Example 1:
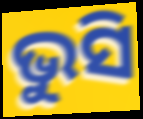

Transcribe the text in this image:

ଭୁସି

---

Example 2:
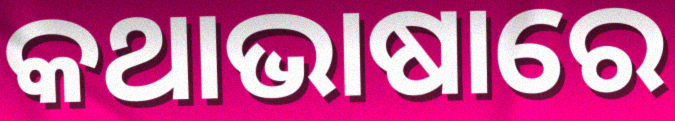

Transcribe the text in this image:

କଥାଭାଷାରେ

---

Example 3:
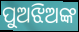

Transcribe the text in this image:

ପୁଅଝିଅଙ୍କ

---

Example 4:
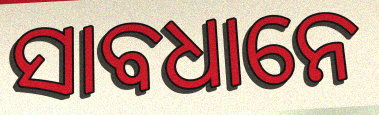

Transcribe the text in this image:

ସାବଧାନେ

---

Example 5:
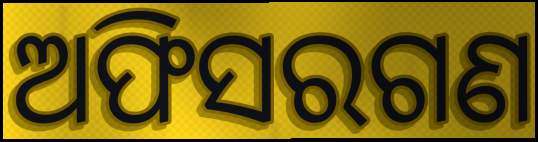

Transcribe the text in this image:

ଅଫିସରଗଣ